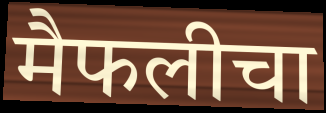
मैफलीचा